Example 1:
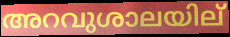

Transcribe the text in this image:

അറവുശാലയില്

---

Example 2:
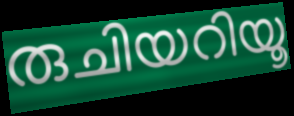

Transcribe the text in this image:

രുചിയറിയൂ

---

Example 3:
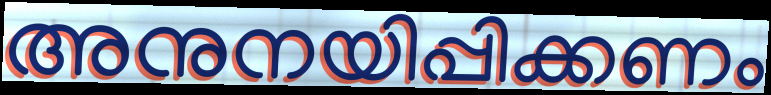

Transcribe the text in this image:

അനുനയിപ്പിക്കണം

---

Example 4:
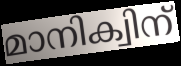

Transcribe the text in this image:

മാനിക്വിന്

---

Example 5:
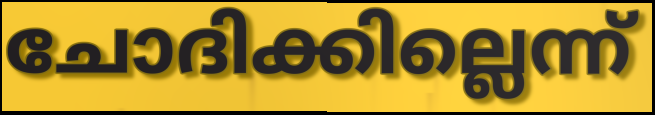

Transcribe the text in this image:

ചോദിക്കില്ലെന്ന്